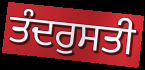
ਤੰਦਰੁਸਤੀ